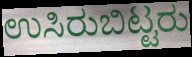
ಉಸಿರುಬಿಟ್ಟರು